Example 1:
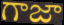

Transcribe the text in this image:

గాజా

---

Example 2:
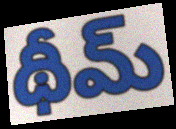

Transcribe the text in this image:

థీమ్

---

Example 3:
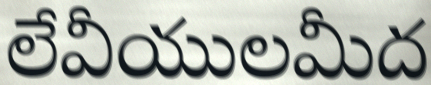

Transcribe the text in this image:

లేవీయులమీద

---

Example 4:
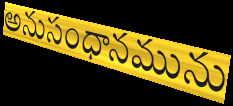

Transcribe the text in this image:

అనుసంధానమును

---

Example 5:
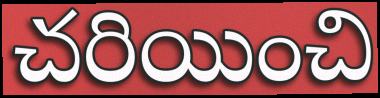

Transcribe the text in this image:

చరియించి